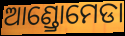
ଆଣ୍ଡ୍ରୋମେଡା